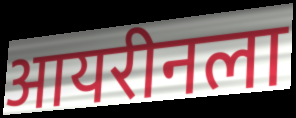
आयरीनला